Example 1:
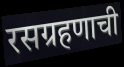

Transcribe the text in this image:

रसग्रहणाची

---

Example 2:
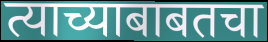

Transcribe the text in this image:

त्याच्याबाबतचा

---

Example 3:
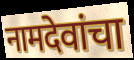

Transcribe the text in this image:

नामदेवांचा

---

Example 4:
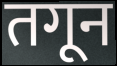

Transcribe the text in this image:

तगून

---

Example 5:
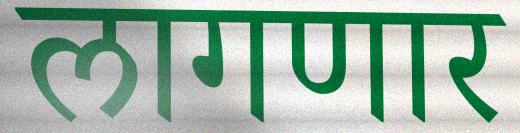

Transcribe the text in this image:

लागणार